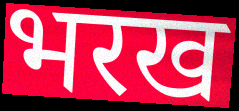
भरख